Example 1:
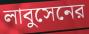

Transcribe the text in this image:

লাবুসেনের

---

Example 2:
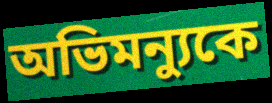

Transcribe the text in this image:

অভিমন্যুকে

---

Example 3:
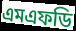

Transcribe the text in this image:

এমএফডি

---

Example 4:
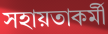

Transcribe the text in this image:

সহায়তাকর্মী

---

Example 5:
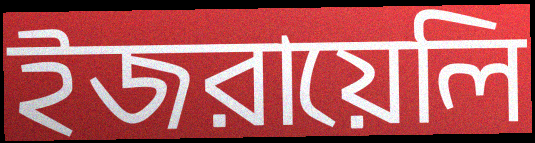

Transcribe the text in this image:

ইজরায়েলি